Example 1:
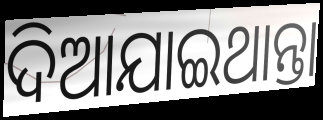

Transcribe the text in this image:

ଦିଆଯାଇଥାନ୍ତା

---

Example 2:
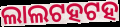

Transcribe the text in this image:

ଲାଲଟହଟହ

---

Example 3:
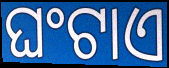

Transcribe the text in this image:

ଘଂଟାଏ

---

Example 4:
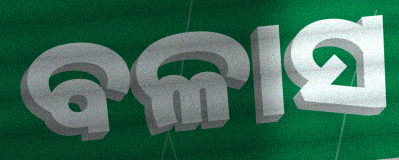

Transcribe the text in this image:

ବଳାସ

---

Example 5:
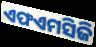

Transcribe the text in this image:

ଏଫଏମସିଜି